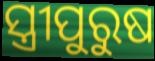
ସ୍ତ୍ରୀପୁରୁଷ